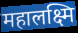
महालक्ष्मि